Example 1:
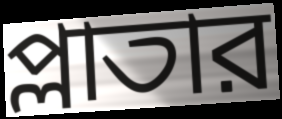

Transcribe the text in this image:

প্লাতার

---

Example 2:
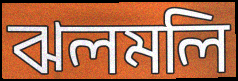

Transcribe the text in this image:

ঝলমলি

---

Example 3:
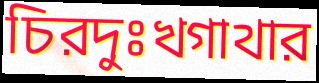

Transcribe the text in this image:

চিরদুঃখগাথার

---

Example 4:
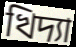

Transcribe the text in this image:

খিদ্যা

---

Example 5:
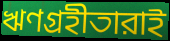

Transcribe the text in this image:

ঋণগ্রহীতারাই